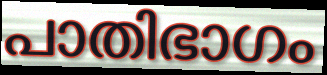
പാതിഭാഗം